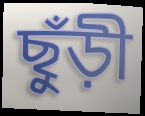
ছুঁড়ী